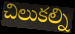
చిలుకల్ని